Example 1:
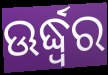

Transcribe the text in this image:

ଊର୍ଦ୍ଧ୍ଵର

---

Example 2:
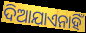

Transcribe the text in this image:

ଦିଆଯାଏନାହିଁ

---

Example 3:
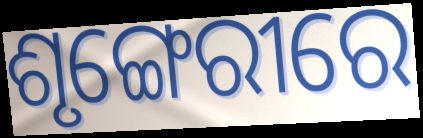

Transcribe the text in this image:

ଶୃଙ୍ଗେରୀରେ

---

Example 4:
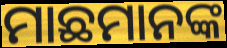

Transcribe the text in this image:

ମାଛମାନଙ୍କ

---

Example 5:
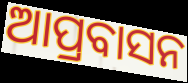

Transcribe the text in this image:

ଆପ୍ରବାସନ